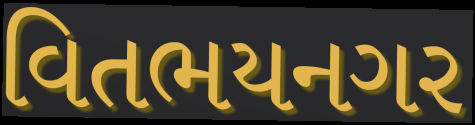
વિતભયનગર